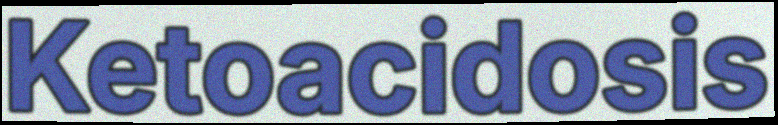
Ketoacidosis